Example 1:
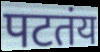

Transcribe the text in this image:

पटतंय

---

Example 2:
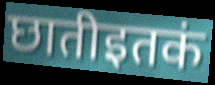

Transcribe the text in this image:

छातीइतकं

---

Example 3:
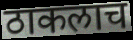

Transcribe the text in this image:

ठाकलाच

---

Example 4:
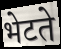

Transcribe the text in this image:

भेटते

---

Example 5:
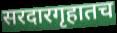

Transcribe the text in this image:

सरदारगृहातच